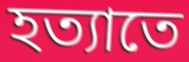
হত্যাতে